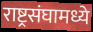
राष्ट्रसंघामध्ये